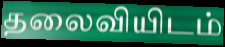
தலைவியிடம்